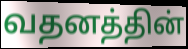
வதனத்தின்